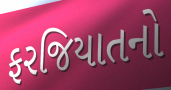
ફરજિયાતનો